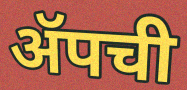
ॲपची